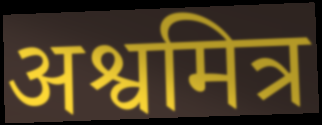
अश्वमित्र